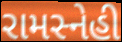
રામસ્નેહી